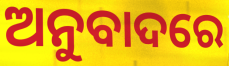
ଅନୁବାଦରେ